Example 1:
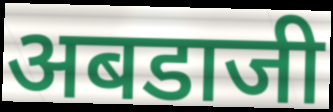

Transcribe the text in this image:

अबडाजी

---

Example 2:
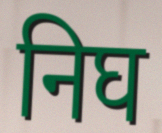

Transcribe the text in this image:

निघ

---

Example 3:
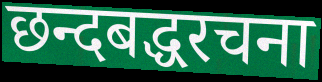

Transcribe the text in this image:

छन्दबद्धरचना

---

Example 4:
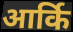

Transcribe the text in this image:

आर्कि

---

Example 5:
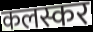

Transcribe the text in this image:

कलस्कर